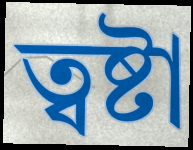
ত্বষ্টা